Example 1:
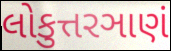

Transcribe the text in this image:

લોકુત્તરઞાણં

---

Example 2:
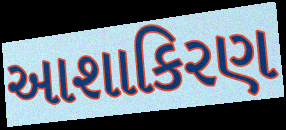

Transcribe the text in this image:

આશાકિરણ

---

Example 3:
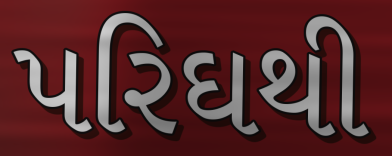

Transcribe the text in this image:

પરિઘથી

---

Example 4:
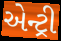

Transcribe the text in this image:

એન્ટ્રી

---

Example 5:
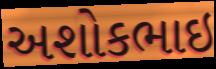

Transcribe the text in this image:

અશોકભાઇ